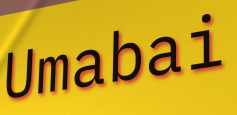
Umabai